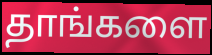
தாங்களை